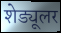
शेड्यूलर